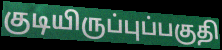
குடியிருப்புப்பகுதி